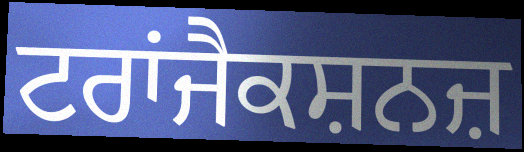
ਟਰਾਂਜੈਕਸ਼ਨਜ਼